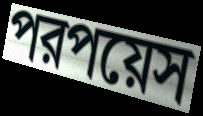
পরপয়েস